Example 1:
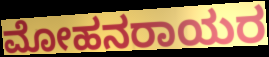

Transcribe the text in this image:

ಮೋಹನರಾಯರ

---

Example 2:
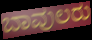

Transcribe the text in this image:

ಬಾವುಲರು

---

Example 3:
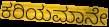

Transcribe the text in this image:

ಕರಿಯಮಾನೇ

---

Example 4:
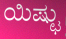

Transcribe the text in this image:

ಯಿಷ್ಟು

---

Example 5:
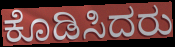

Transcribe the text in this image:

ಕೊಡಿಸಿದರು